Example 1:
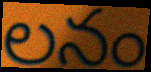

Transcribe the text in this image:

లనం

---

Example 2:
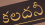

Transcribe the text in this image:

కలదనీ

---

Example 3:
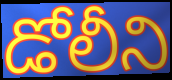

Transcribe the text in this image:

డోలీని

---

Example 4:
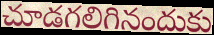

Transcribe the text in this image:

చూడగలిగినందుకు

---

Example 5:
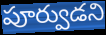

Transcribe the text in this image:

పూర్వుడని